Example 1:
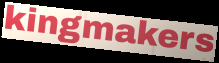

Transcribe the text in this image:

kingmakers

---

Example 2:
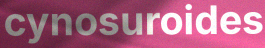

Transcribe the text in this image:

cynosuroides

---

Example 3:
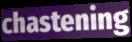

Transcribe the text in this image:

chastening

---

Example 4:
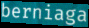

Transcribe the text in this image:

berniaga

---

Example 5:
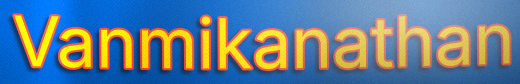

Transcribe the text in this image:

Vanmikanathan